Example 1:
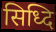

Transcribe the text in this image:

सिध्दि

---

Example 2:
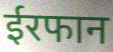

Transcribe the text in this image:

ईरफान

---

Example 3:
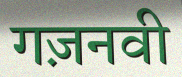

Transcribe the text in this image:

गज़नवी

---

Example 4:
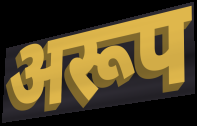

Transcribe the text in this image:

अरूप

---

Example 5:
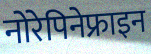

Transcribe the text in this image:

नोरेपिनेफ्राइन